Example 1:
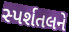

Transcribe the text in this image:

સ્પર્શતલને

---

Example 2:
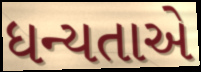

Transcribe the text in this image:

ધન્યતાએ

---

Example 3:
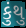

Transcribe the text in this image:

કુંથુ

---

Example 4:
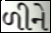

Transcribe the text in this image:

ળીને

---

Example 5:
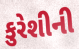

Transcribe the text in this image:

કુરેશીની